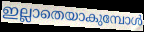
ഇല്ലാതെയാകുമ്പോൾ